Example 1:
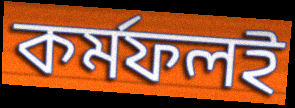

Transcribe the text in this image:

কর্মফলই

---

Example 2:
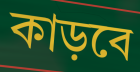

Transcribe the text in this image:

কাড়বে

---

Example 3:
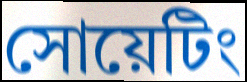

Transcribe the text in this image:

সোয়েটিং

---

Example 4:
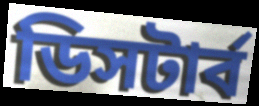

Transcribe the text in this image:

ডিসটার্ব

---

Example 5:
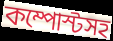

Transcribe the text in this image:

কম্পোস্টসহ